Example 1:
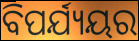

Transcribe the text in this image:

ବିପର୍ଯ୍ୟୟର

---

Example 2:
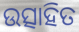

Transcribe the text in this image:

ଉତ୍ସାହିତ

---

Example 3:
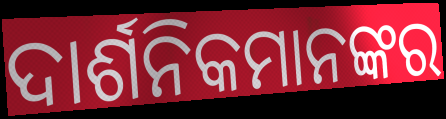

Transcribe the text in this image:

ଦାର୍ଶନିକମାନଙ୍କର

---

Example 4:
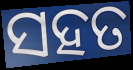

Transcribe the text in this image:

ସହତ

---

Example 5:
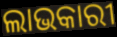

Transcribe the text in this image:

ଲାଭକାରୀ